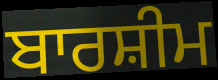
ਬਾਰਸ਼ੀਮ